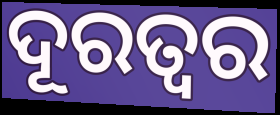
ଦୂରତ୍ଵର